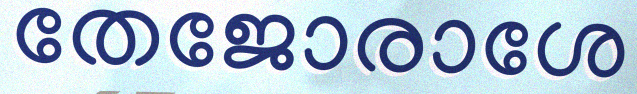
തേജോരാശേ